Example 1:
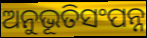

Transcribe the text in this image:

ଅନୁଭୂତିସଂପନ୍ନ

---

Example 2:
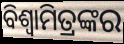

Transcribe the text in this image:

ବିଶ୍ବାମିତ୍ରଙ୍କର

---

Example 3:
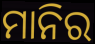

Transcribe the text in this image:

ମାନିର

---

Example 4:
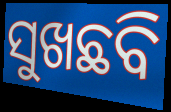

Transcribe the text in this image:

ସୁଖଛବି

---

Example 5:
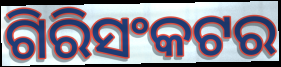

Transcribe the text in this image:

ଗିରିସଂକଟର